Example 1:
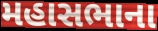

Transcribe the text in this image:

મહાસભાના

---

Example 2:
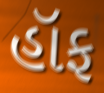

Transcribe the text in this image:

હૉફ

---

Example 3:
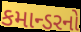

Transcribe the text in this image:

કમાન્ડરનો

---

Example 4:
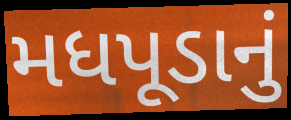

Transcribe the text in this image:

મધપૂડાનું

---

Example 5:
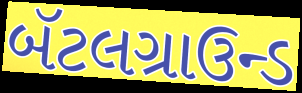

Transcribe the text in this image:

બૅટલગ્રાઉન્ડ